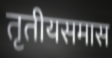
तृतीयसमास